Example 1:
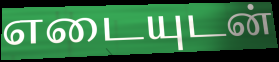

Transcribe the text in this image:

எடையுடன்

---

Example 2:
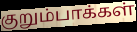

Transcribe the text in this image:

குறும்பாக்கள்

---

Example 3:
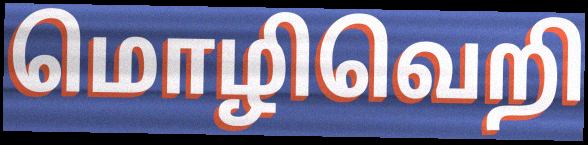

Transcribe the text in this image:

மொழிவெறி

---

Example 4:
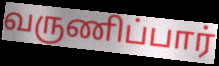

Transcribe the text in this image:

வருணிப்பார்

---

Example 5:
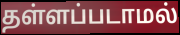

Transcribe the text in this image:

தள்ளப்படாமல்